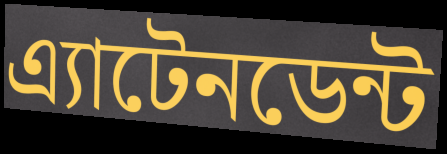
এ্যাটেনডেন্ট